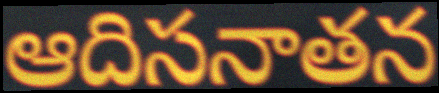
ఆదిసనాతన